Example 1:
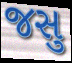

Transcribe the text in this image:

જસુ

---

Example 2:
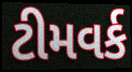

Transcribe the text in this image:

ટીમવર્ક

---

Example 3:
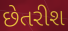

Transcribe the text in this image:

છેતરીશ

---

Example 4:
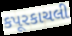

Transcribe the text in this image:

કપૂરકાચલી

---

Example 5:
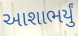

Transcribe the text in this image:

આશાભર્યું